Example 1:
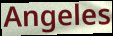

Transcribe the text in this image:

Angeles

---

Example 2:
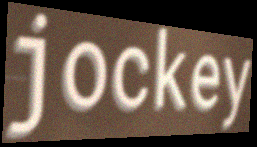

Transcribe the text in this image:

jockey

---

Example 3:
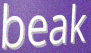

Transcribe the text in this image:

beak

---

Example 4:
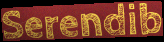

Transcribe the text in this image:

Serendib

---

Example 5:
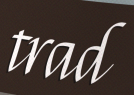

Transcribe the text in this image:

trad